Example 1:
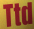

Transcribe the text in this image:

Ttd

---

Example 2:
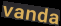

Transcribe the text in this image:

vanda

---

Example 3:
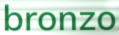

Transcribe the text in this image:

bronzo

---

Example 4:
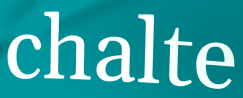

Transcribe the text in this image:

chalte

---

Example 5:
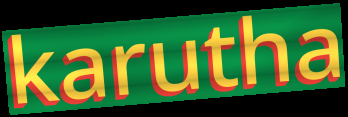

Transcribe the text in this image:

karutha